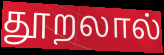
தூறலால்